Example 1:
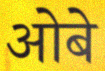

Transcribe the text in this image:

ओबे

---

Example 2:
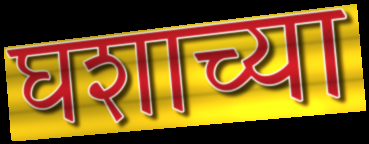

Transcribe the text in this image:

घशाच्या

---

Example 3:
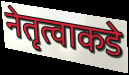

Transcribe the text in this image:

नेतृत्वाकडे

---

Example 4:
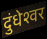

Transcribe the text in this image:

दुंधेश्वर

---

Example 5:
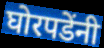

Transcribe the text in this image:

घोरपडेंनी